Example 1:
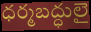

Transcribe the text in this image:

ధర్మబద్ధులై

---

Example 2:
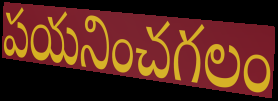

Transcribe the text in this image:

పయనించగలం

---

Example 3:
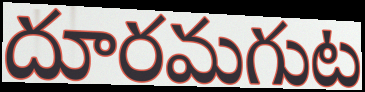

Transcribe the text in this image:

దూరమగుట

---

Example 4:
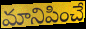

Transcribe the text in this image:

మానిపించే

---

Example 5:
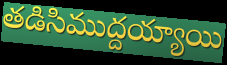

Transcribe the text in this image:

తడిసిముద్దయ్యాయి